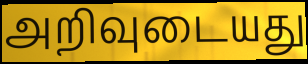
அறிவுடையது